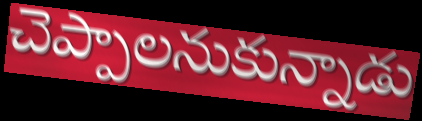
చెప్పాలనుకున్నాడు